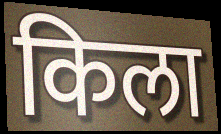
किला